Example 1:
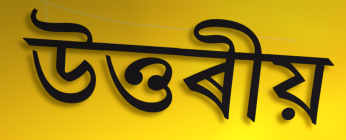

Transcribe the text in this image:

উত্তৰীয়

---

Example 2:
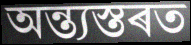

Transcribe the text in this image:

অন্ত্যস্তৰত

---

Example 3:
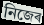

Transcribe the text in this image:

নিজেৰ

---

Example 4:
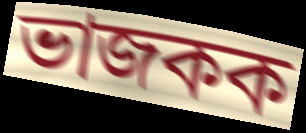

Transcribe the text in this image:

ভাজকক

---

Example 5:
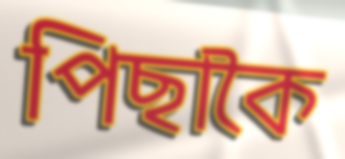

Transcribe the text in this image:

পিছাকৈ